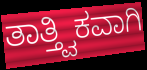
ತಾತ್ತ್ವಿಕವಾಗಿ